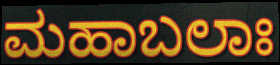
ಮಹಾಬಲಾಃ